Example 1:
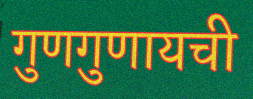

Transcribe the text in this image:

गुणगुणायची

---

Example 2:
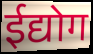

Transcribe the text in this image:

ईद्योग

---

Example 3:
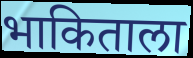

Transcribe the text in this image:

भाकिताला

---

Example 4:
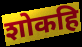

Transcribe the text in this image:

शोकहि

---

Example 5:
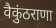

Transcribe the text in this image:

वैकुंठराणा